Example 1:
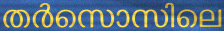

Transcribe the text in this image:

തർസൊസിലെ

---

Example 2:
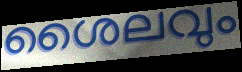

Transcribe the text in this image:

ശൈലവും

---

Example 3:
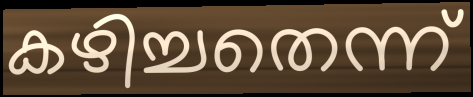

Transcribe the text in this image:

കഴിച്ചതെന്ന്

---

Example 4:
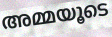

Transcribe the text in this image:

അമ്മയൂടെ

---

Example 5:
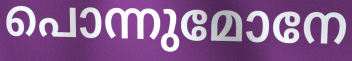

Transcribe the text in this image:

പൊന്നുമോനേ